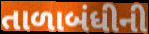
તાળાબંધીની